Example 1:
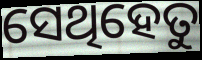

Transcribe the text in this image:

ସେଥିହେତୁ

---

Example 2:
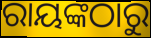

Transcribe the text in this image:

ରାୟଙ୍କଠାରୁ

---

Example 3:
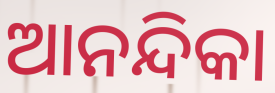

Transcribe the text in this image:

ଆନନ୍ଦିକା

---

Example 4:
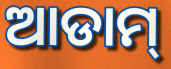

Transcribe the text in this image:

ଆଡାମ୍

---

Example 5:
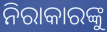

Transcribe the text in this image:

ନିରାକାରଙ୍କୁ